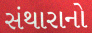
સંથારાનો